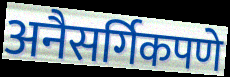
अनैसर्गिकपणे